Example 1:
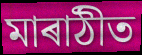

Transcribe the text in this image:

মাৰাঠীত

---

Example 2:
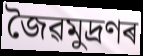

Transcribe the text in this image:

জৈৱমুদ্ৰণৰ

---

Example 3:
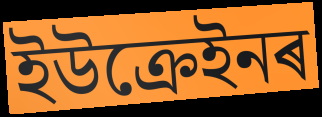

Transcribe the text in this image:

ইউক্ৰেইনৰ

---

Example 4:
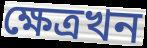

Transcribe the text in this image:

ক্ষেত্ৰখন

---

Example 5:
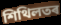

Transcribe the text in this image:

শিথিলতৰ